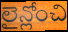
లైన్లోంచి